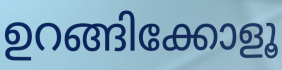
ഉറങ്ങിക്കോളൂ